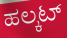
ಹಲ್ಕಟ್